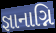
જ્ઞાનાગ્નિ